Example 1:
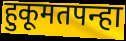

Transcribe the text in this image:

हुकूमतपन्हा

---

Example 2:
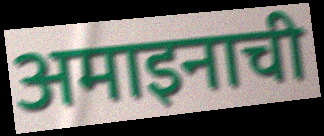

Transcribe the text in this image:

अमाइनाची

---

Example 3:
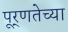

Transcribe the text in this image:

पूर्णतेच्या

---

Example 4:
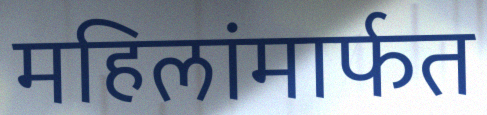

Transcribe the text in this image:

महिलांमार्फत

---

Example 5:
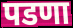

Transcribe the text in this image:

पडणा